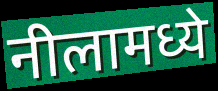
नीलामध्ये